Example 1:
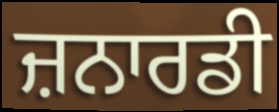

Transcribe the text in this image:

ਜ਼ਨਾਰਡੀ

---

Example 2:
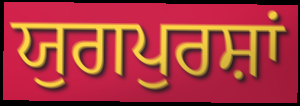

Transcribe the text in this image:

ਯੁਗਪੁਰਸ਼ਾਂ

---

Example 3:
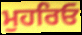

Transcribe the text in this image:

ਮੁਹਰਿਓ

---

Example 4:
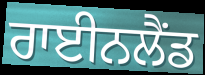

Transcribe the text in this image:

ਰਾਈਨਲੈਂਡ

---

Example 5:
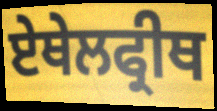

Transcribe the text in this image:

ਏਥੇਲਫ੍ਰੀਥ